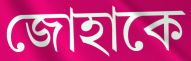
জোহাকে